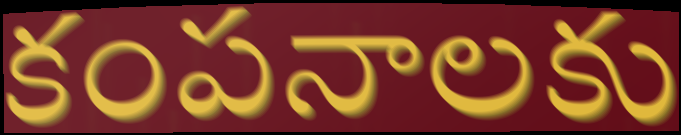
కంపనాలకు